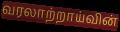
வரலாற்றாய்வின்